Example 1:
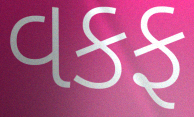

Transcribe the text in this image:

વકફ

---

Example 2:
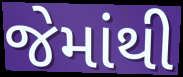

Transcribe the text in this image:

જેમાંથી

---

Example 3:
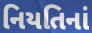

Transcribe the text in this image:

નિયતિનાં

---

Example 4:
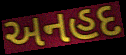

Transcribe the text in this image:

અનહદ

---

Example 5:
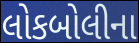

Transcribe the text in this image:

લોકબોલીના